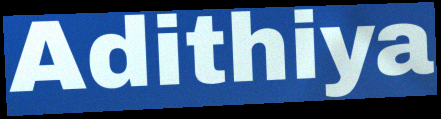
Adithiya